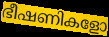
ഭീഷണികളോ